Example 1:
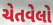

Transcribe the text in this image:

ચેતવેલો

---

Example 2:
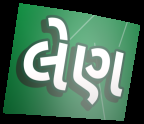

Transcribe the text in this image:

લેણ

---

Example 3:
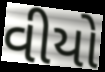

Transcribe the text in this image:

વીયો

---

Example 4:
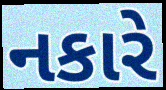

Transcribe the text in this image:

નકારે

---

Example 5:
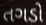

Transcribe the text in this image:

તગડો